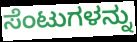
ಸೆಂಟುಗಳನ್ನು